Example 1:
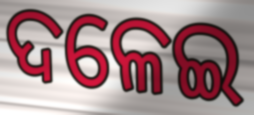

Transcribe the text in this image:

ଦଳେଇ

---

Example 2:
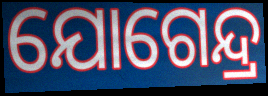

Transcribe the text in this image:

ଯୋଗେନ୍ଦ୍ର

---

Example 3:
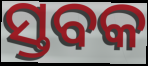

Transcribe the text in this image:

ସ୍ତବକ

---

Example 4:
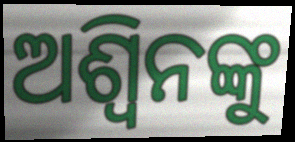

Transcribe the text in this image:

ଅଶ୍ବିନଙ୍କୁ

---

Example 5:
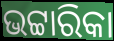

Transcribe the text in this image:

ଭଟ୍ଟାରିକା